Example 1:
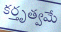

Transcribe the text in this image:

కర్తృత్వమే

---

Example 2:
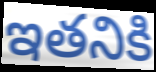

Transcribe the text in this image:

ఇతనికి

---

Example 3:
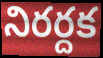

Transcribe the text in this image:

నిరర్దక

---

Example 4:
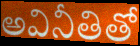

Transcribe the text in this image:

అవినీతితో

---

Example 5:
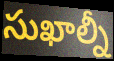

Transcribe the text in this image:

సుఖాల్నీ